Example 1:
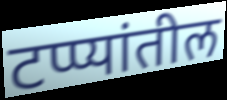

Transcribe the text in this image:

टप्प्यांतील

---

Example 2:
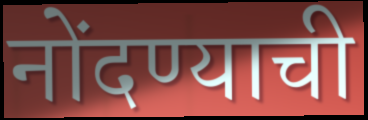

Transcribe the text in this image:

नोंदण्याची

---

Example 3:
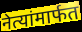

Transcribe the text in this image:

नेत्यांमार्फत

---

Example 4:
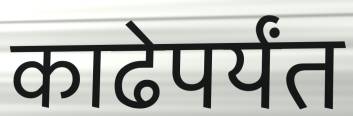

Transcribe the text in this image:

काढेपर्यंत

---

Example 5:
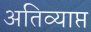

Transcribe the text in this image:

अतिव्याप्त